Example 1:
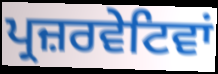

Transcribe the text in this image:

ਪ੍ਰਜ਼ਰਵੇਟਿਵਾਂ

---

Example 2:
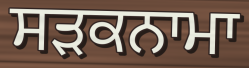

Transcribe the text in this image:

ਸਡ਼ਕਨਾਮਾ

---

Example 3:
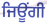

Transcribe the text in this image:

ਜਿਊਂਗੀ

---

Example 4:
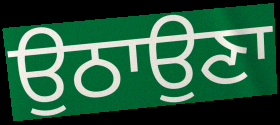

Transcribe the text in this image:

ਉਠਾਉਣਾ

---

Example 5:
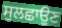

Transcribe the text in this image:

ਸੁਲਛਾਉਣ